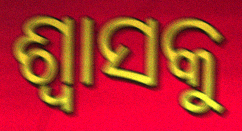
ଶ୍ଵାସକୁ